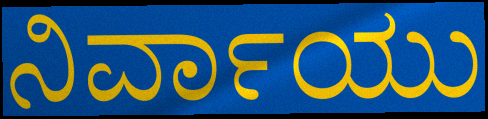
ನಿರ್ವಾಯು